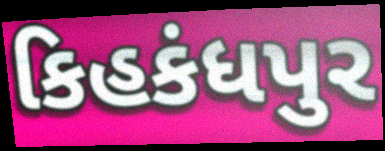
કિહકંધપુર